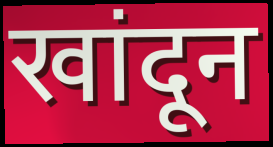
खांदून